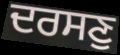
ਦਰਸਣੁ